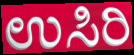
ಉಸಿರಿ